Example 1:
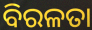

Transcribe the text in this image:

ବିରଳତା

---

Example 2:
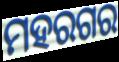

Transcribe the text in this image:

ମହରଗର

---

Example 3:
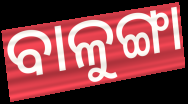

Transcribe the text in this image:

ବାଳୁଙ୍ଗା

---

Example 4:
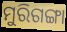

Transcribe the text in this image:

ମୁରିଗଙ୍ଗା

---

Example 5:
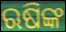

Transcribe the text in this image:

ଋଷିଙ୍କ